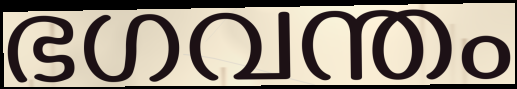
ഭഗവന്തം